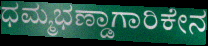
ಧಮ್ಮಭಣ್ಡಾಗಾರಿಕೇನ